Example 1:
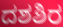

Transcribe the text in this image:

ದಶಶಿರ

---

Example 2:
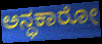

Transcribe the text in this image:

ಅನ್ಧಕಾರೋ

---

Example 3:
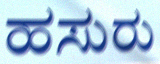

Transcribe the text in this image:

ಹಸುರು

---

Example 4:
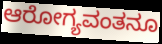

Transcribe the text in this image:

ಆರೋಗ್ಯವಂತನೂ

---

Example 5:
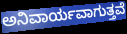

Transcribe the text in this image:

ಅನಿವಾರ್ಯವಾಗುತ್ತವೆ